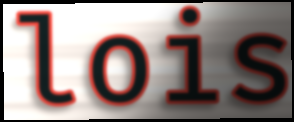
lois